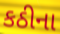
કઠીના